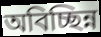
অবিচ্ছিন্ন